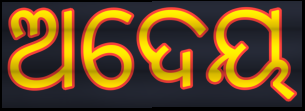
ଅଦେୟ